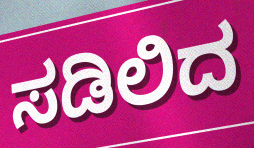
ಸಡಿಲಿದ